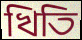
খিতি